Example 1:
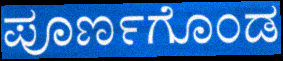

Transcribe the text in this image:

ಪೂರ್ಣಗೊಂಡ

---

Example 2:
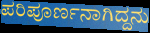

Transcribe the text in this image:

ಪರಿಪೂರ್ಣನಾಗಿದ್ದನು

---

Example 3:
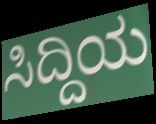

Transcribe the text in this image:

ಸಿದ್ದಿಯ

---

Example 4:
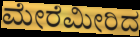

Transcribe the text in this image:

ಮೇರೆಮೀರಿದ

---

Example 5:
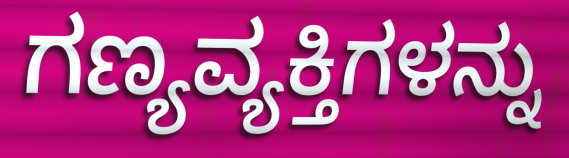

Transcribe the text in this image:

ಗಣ್ಯವ್ಯಕ್ತಿಗಳನ್ನು